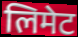
लिमेट